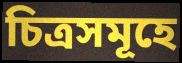
চিত্ৰসমূহে